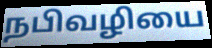
நபிவழியை